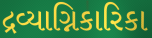
દ્રવ્યાગ્નિકારિકા